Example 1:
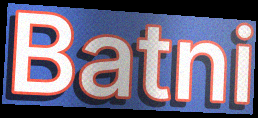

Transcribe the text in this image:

Batni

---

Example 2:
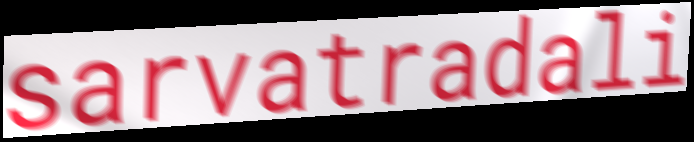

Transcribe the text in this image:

sarvatradali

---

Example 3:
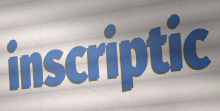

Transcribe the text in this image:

inscriptic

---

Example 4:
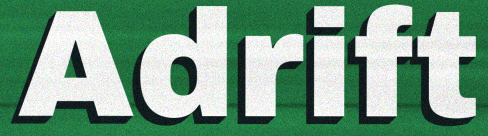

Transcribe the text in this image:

Adrift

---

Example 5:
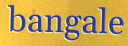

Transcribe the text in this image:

bangale